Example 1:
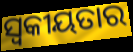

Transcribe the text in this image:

ସ୍ୱକୀୟତାର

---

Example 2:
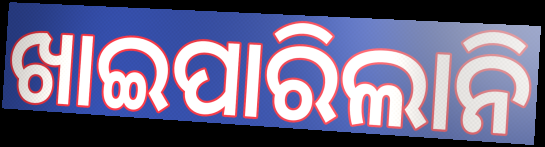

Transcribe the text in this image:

ଖାଇପାରିଲାନି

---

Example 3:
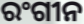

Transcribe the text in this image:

ରଂଗୀନ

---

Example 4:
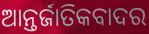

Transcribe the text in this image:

ଆନ୍ତର୍ଜାତିକବାଦର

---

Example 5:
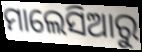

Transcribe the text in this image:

ମାଲେସିଆରୁ